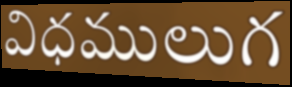
విధములుగ